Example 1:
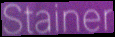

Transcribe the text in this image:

Stainer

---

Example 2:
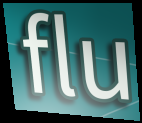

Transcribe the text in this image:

flu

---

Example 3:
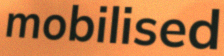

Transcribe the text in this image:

mobilised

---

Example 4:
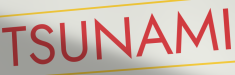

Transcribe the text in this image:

TSUNAMI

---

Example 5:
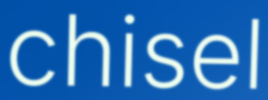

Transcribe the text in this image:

chisel